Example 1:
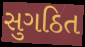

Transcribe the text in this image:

સુગઠિત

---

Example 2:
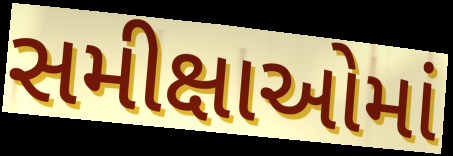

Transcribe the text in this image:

સમીક્ષાઓમાં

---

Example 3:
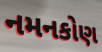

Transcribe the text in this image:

નમનકોણ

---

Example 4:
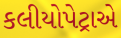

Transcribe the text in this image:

કલીયોપેટ્રાએ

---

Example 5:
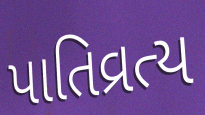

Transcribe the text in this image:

પાતિવ્રત્ય